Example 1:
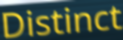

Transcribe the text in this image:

Distinct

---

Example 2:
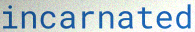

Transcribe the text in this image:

incarnated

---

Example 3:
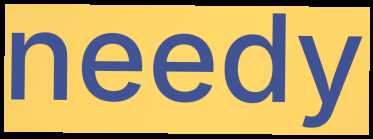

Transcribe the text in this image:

needy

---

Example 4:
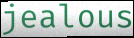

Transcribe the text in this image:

jealous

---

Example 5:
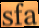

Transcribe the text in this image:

sfa